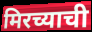
मिरच्याची